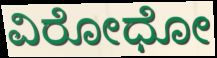
ವಿರೋಧೋ